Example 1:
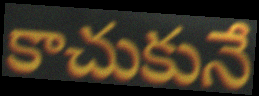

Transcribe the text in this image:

కాచుకునే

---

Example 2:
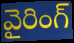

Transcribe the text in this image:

వైరింగ్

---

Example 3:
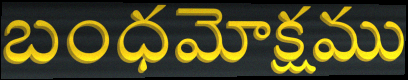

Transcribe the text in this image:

బంధమోక్షము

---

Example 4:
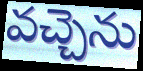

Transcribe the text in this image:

వచ్చెను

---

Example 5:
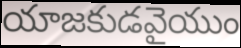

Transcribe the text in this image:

యాజకుడవైయుం